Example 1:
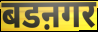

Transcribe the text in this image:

बडऩगर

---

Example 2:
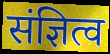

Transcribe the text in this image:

संज्ञित्व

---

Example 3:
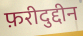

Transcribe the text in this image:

फ़रीदुद्दीन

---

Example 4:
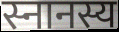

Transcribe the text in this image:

स्नानस्य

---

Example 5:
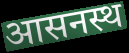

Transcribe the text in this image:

आसनस्थ